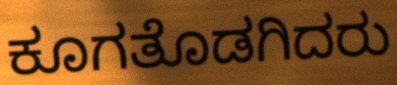
ಕೂಗತೊಡಗಿದರು